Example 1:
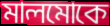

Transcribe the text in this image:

মালমোকে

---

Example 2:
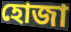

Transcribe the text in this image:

হোজা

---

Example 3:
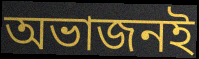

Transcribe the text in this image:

অভাজনই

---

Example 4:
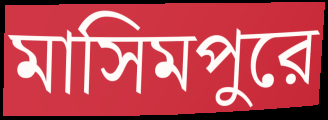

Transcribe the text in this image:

মাসিমপুরে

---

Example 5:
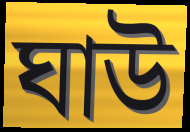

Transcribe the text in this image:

ঘাউ